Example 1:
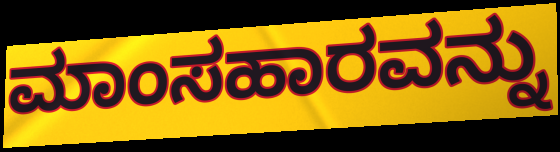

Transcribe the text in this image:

ಮಾಂಸಹಾರವನ್ನು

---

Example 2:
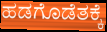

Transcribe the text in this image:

ಹಡಗೊಡೆತಕ್ಕೆ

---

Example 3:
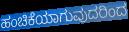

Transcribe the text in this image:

ಹಂಚಿಕೆಯಾಗುವುದರಿಂದ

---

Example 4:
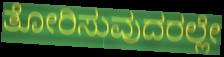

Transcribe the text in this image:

ತೋರಿಸುವುದರಲ್ಲೇ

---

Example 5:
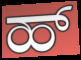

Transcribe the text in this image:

ಹ್